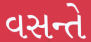
વસન્તે